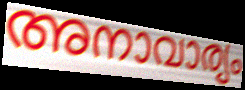
അനാവാര്യം